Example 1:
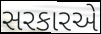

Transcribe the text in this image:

સરકારએ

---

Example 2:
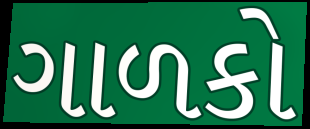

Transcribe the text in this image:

ગાળકો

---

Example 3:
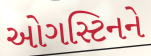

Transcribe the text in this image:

ઓગસ્ટિનને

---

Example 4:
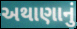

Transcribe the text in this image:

અથાણાનું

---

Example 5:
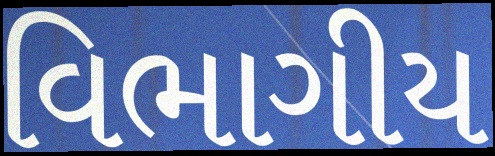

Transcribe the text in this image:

વિભાગીય